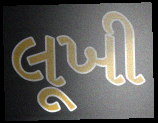
લૂખી